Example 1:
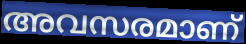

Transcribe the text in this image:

അവസരമാണ്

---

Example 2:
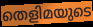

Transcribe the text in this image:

തെളിമയുടെ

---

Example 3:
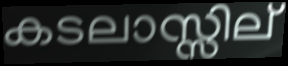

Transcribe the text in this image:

കടലാസ്സില്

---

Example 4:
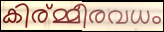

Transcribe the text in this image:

കിര്മ്മീരവധം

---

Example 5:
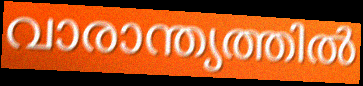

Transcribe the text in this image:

വാരാന്ത്യത്തിൽ